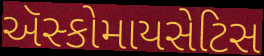
ઍસ્કોમાયસેટિસ